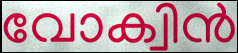
വോക്വിൻ